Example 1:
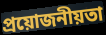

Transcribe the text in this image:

প্ৰয়োজনীয়তা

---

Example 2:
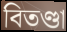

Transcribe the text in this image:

বিতণ্ডা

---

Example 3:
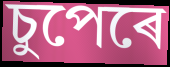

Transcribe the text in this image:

চুপেৰে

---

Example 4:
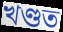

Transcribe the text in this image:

খণ্ডত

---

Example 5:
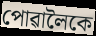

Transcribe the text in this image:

পোৱালৈকে